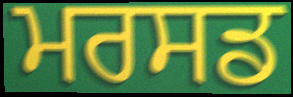
ਮਰਸਡ